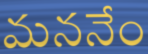
మననేం